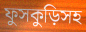
ফুসকুড়িসহ